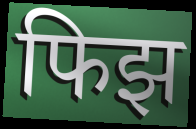
फिझ